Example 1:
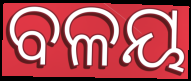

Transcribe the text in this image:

ବଳୟ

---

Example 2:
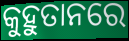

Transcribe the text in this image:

କୁହୁତାନରେ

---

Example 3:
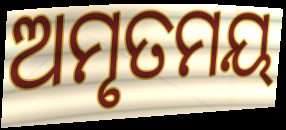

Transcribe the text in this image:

ଅମୃତମୟ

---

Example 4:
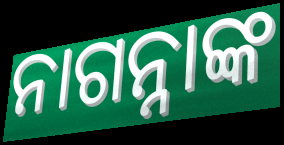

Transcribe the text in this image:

ନାଗନ୍ନାଙ୍କ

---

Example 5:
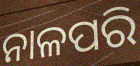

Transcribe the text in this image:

ନାଳପରି